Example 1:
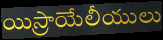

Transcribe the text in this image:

యిస్రాయేలీయులు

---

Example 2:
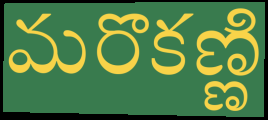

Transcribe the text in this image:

మరొకణ్ణి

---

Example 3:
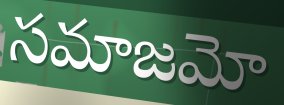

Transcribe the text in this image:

సమాజమో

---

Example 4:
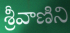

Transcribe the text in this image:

శ్రీవాణిని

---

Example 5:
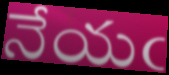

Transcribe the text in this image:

నేయఁ